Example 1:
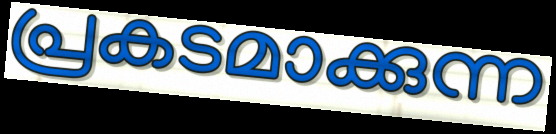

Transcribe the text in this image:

പ്രകടമാക്കുന്ന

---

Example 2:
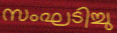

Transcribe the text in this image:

സംഘടിച്ചു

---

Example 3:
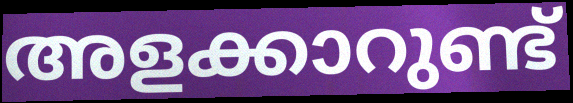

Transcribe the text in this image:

അളക്കാറുണ്ട്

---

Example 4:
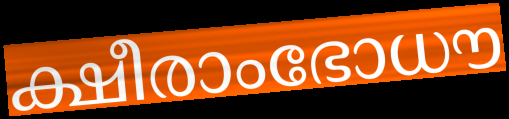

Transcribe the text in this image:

ക്ഷീരാംഭോധൗ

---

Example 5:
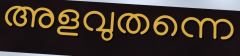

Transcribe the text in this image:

അളവുതന്നെ